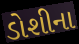
ડોશીના